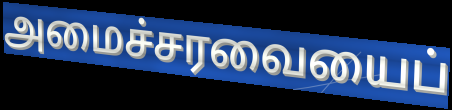
அமைச்சரவையைப்